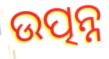
ଉତ୍ପନ୍ନ